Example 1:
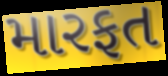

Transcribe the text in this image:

મારફત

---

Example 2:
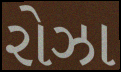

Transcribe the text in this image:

રોઝા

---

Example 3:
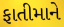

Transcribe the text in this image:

ફાતીમાને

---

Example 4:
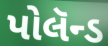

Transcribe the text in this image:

પોલૅન્ડ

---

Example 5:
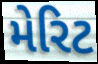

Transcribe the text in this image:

મેરિટ